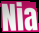
Nia